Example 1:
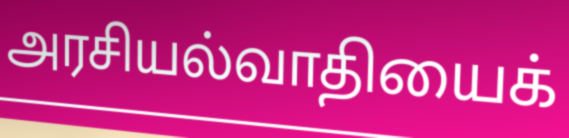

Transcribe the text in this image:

அரசியல்வாதியைக்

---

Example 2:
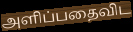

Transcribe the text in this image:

அளிப்பதைவிட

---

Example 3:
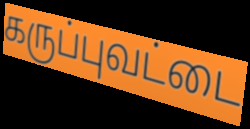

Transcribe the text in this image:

கருப்புவட்டை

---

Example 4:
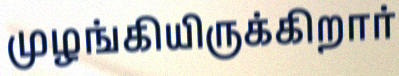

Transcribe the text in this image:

முழங்கியிருக்கிறார்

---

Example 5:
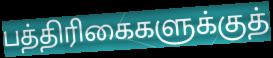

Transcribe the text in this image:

பத்திரிகைகளுக்குத்